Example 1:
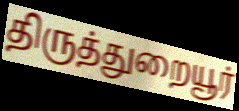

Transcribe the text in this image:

திருத்துறையூர்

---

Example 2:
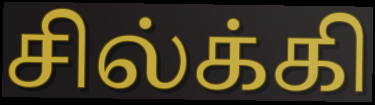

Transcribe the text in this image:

சில்க்கி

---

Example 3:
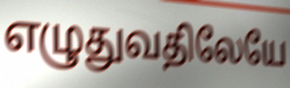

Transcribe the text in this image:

எழுதுவதிலேயே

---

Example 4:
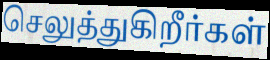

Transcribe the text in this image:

செலுத்துகிறீர்கள்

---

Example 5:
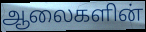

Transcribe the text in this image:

ஆலைகளின்